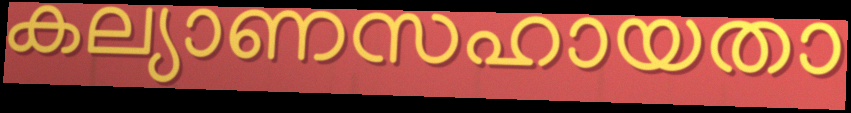
കല്യാണസഹായതാ